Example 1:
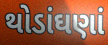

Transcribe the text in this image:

થોડાંઘણાં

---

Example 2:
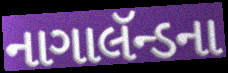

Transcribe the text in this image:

નાગાલૅન્ડના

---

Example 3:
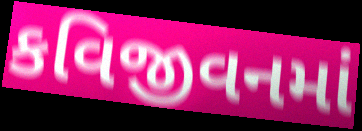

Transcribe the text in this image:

કવિજીવનમાં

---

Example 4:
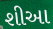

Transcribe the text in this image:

શીઆ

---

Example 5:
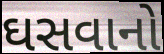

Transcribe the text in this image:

ઘસવાનો